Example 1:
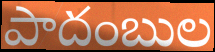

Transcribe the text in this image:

పాదంబుల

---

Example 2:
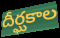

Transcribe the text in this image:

దీర్ఘకాల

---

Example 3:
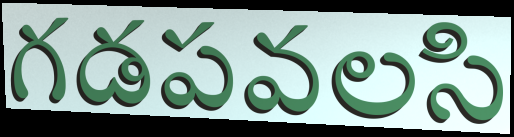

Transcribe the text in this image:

గడపవలసి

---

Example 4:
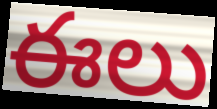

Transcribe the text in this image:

ఈలు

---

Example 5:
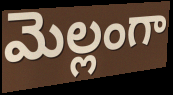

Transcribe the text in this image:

మెల్లంగా